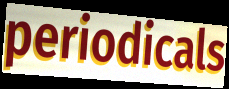
periodicals